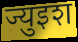
ज्युइश